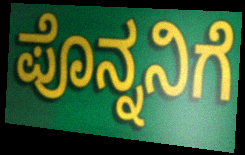
ಪೊನ್ನನಿಗೆ